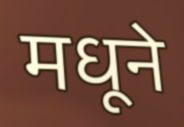
मधूने